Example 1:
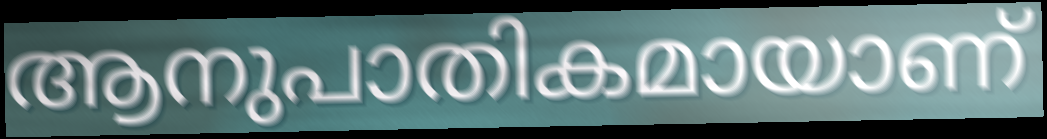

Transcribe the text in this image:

ആനുപാതികമായാണ്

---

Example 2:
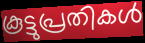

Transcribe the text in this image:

കൂട്ടുപ്രതികൾ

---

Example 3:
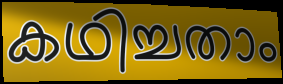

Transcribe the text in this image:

കഥിച്ചതാം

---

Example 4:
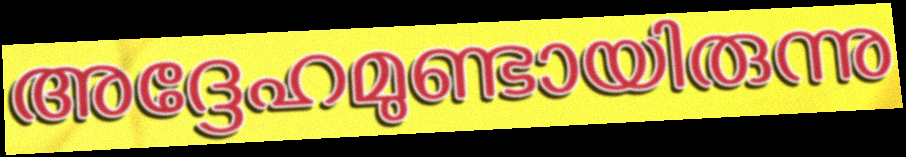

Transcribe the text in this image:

അദ്ദേഹമുണ്ടായിരുന്നു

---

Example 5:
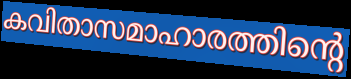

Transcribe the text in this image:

കവിതാസമാഹാരത്തിന്റെ